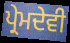
ਪ੍ਰੇਮਦੇਵੀ